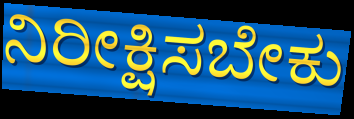
ನಿರೀಕ್ಷಿಸಬೇಕು